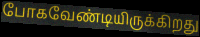
போகவேண்டியிருக்கிறது